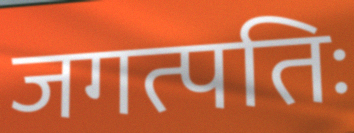
जगत्पतिः